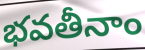
భవతీనాం